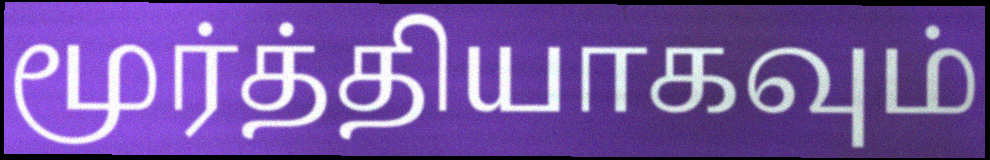
மூர்த்தியாகவும்